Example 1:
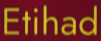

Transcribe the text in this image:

Etihad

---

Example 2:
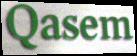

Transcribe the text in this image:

Qasem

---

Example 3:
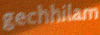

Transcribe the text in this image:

gechhilam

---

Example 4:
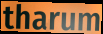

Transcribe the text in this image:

tharum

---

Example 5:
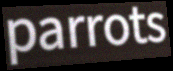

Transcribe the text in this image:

parrots